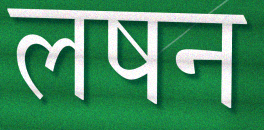
लषन